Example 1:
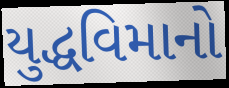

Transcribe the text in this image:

યુદ્ધવિમાનો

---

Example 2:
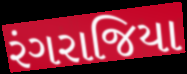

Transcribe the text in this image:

રંગરાજિયા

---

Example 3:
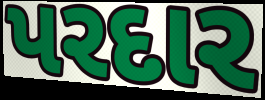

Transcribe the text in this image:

પરદાર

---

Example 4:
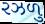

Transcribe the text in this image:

રઝળુ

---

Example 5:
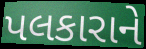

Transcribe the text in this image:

પલકારાને